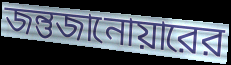
জন্তুজানোয়ারের